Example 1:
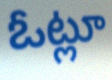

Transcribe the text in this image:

ఓట్లూ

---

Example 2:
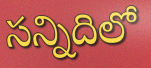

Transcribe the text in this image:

సన్నిదిలో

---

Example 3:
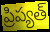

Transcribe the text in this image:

ప్రిప్యత్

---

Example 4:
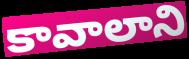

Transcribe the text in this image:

కావాలాని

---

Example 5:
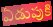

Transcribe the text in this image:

ఏడుపుకి